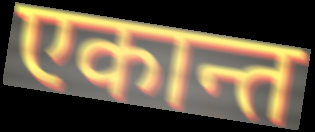
एकान्त